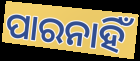
ପାରନାହିଁ